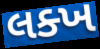
લક્ખ